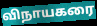
விநாயகரை